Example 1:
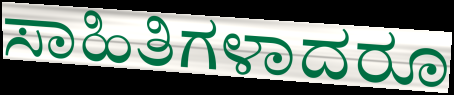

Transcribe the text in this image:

ಸಾಹಿತಿಗಳಾದರೂ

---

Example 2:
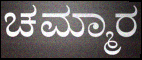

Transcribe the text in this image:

ಚಮ್ಮಾರ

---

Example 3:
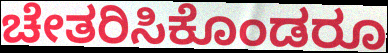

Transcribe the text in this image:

ಚೇತರಿಸಿಕೊಂಡರೂ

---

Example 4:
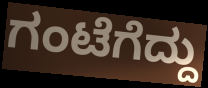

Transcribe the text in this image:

ಗಂಟೆಗೆದ್ದು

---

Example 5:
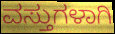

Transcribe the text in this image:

ವಸ್ತುಗಳಾಗಿ